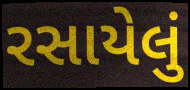
રસાયેલું